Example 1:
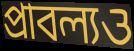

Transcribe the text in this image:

প্রাবল্যও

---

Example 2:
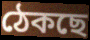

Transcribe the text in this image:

ঠেকছে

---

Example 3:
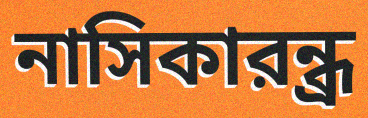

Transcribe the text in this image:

নাসিকারন্ধ্র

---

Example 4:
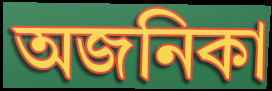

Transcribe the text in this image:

অজনিকা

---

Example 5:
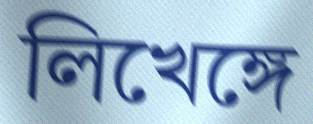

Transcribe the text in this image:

লিখেঙ্গে